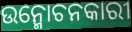
ଉନ୍ମୋଚନକାରୀ